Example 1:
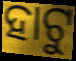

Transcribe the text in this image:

ହାଟୁ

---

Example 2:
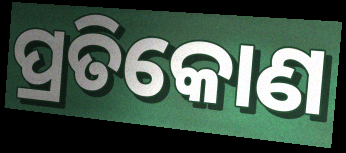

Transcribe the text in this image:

ପ୍ରତିକୋଣ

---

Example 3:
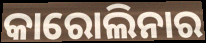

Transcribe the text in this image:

କାରୋଲିନାର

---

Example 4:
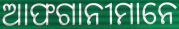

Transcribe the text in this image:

ଆଫଗାନୀମାନେ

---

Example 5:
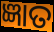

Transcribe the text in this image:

ଜ୍ଞାତ